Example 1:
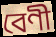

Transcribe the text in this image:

বেণী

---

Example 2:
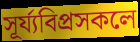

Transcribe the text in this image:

সূৰ্য্যবিপ্ৰসকলে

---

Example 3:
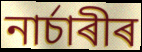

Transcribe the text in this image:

নাৰ্চাৰীৰ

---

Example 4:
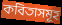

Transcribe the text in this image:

কবিতাসমূহ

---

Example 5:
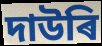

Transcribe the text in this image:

দাউৰি